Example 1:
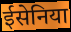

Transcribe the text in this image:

ईसेनिया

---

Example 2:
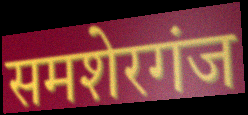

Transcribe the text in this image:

समशेरगंज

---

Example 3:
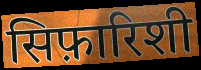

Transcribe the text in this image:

सिफ़ारिशी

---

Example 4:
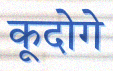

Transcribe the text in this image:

कूदोगे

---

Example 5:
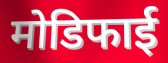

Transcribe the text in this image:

मोडिफाई